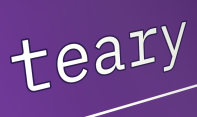
teary